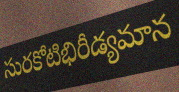
సురకోటిభిరీడ్యమాన